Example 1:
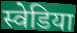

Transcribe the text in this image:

स्वेडिया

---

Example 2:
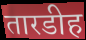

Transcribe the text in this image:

तारडीह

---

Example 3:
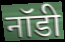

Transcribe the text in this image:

नॉडी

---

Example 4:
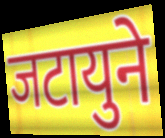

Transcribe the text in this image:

जटायुने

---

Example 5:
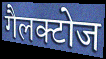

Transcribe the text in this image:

गैलक्टोज